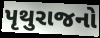
પૃથુરાજનો